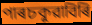
পাৰচকুৱাবিৰি